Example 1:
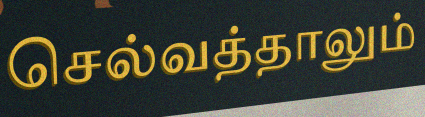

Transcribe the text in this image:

செல்வத்தாலும்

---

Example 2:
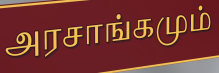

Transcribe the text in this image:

அரசாங்கமும்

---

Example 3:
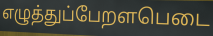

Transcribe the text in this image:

எழுத்துப்பேறளபெடை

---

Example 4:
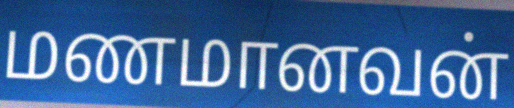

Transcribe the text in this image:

மணமானவன்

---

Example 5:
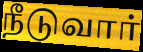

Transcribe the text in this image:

நீடுவார்